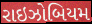
રાઇઝોબિયમ